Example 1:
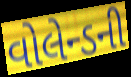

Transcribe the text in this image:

વોલેન્ડની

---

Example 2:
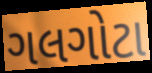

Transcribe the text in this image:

ગલગોટા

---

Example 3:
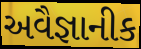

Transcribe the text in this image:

અવૈજ્ઞાનીક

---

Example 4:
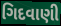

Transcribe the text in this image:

ગિદવાણી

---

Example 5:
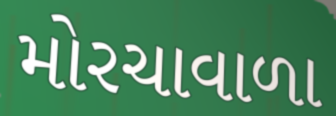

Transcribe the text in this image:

મોરચાવાળા